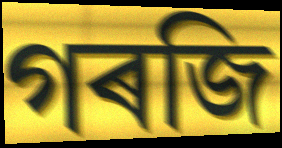
গৰজি